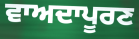
ਵਾਅਦਾਪੂਰਣ